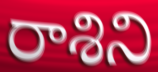
రాశిని